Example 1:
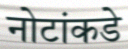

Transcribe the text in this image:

नोटांकडे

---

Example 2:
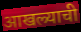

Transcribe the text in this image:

आखल्याची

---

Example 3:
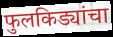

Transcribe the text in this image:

फुलकिड्यांचा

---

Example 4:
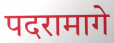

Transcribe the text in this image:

पदरामागे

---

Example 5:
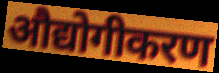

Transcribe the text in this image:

औद्योगीकरण